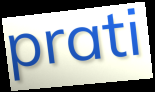
prati